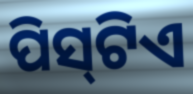
ପିସ୍‌ଟିଏ